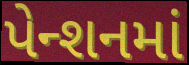
પેન્શનમાં